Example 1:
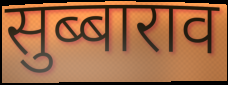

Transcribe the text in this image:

सुब्बाराव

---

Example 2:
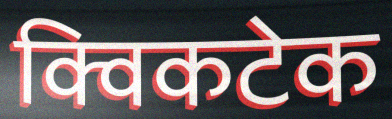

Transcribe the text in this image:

क्विकटेक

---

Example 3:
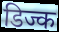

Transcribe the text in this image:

डिज्क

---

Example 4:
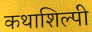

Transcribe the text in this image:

कथाशिल्पी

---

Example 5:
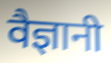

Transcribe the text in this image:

वैज्ञानी